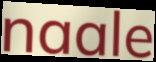
naale